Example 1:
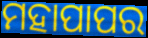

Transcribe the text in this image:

ମହାପାପର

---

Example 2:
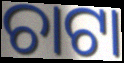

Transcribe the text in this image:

ଚାଟା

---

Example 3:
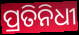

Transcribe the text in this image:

ପ୍ରତିନିଧୀ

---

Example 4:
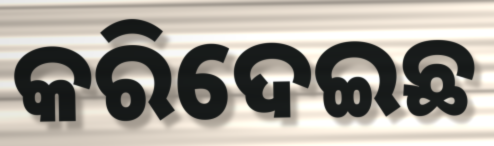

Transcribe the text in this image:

କରିଦେଇଛ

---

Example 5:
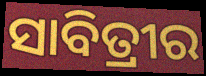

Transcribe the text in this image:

ସାବିତ୍ରୀର